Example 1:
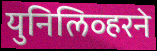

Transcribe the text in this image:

युनिलिव्हरने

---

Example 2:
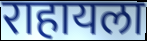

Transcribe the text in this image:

राहायला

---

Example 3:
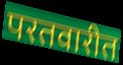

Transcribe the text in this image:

परतवारीत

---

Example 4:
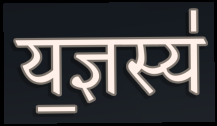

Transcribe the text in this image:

य॒ज्ञस्य॑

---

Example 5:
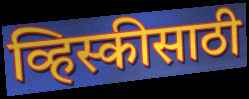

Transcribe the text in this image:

व्हिस्कीसाठी